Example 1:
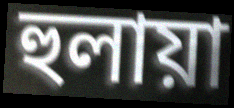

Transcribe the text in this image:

হুলায়া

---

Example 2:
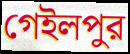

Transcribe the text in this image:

গেইলপুর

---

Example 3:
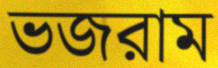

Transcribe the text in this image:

ভজরাম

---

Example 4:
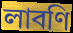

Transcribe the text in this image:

লাবণি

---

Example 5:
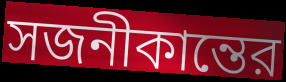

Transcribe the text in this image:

সজনীকান্তের